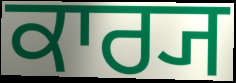
ਕਾਰ੍ਯ